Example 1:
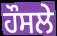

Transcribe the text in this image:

ਹੌਸਲੇ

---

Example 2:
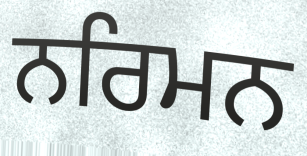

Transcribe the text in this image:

ਨਰਿਮਨ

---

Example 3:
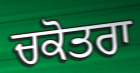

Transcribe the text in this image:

ਚਕੋਤਰਾ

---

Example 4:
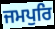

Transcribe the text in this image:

ਜਮਪੁਰਿ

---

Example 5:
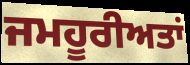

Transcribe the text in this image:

ਜਮਹੂਰੀਅਤਾਂ